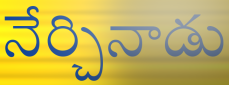
నేర్చినాడు